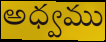
అధ్వము